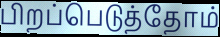
பிறப்பெடுத்தோம்